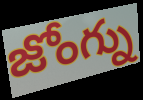
జోంగ్ను